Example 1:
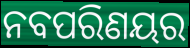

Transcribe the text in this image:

ନବପରିଣୟର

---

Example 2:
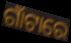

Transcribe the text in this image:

ଗାଁଟାରେ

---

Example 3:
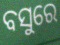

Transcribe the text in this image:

ବସୁରେ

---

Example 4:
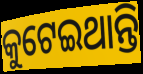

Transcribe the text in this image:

କୁଟେଇଥାନ୍ତି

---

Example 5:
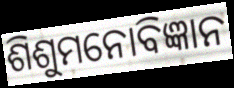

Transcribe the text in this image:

ଶିଶୁମନୋବିଜ୍ଞାନ